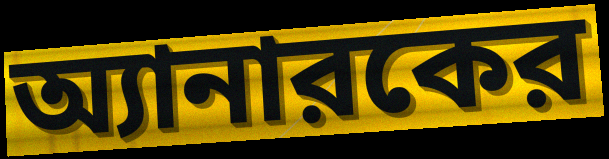
অ্যানারকের